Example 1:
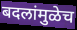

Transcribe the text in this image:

बदलांमुळेच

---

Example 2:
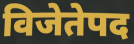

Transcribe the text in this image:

विजेतेपद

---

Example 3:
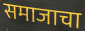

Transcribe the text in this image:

समाजाचा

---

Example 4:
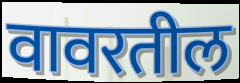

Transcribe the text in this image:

वावरतील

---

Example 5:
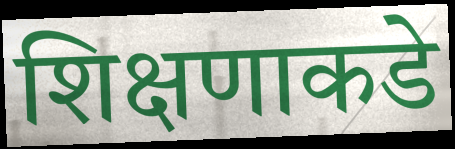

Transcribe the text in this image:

शिक्षणाकडे